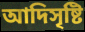
আদিসৃষ্টি